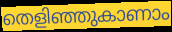
തെളിഞ്ഞുകാണാം